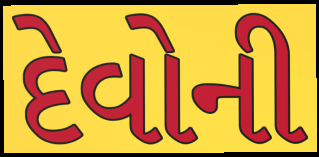
દેવોની